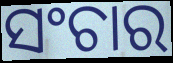
ସଂଚାର